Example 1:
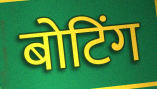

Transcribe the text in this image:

बोटिंग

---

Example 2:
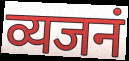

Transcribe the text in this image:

व्यजनं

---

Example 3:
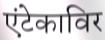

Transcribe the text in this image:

एंटेकाविर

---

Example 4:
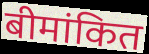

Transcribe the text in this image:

बीमांकित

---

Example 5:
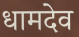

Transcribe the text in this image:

धामदेव